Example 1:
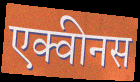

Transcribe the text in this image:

एक्वीनस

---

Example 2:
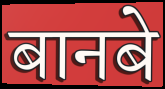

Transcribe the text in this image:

बानबे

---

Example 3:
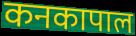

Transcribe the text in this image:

कनकापाल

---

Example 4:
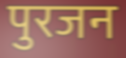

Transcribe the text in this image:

पुरजन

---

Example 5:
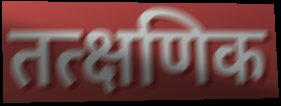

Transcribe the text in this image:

तत्क्षणिक